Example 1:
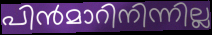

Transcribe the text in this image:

പിൻമാറിനിന്നില്ല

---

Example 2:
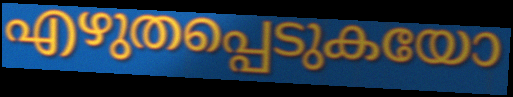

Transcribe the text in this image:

എഴുതപ്പെടുകയോ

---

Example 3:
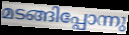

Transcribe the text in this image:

മടങ്ങിപ്പോന്നു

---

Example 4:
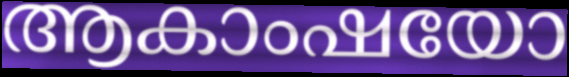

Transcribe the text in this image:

ആകാംഷയോ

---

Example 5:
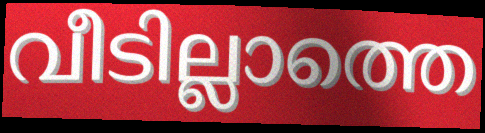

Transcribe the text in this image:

വീടില്ലാത്തെ